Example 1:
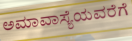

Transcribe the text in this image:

ಅಮಾವಾಸ್ಯೆಯವರೆಗೆ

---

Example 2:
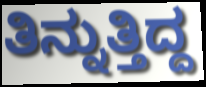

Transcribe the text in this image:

ತಿನ್ನುತ್ತಿದ್ದ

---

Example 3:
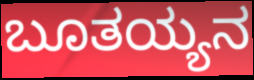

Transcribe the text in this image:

ಬೂತಯ್ಯನ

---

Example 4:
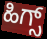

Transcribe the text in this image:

ಹಿಗ್ಸ್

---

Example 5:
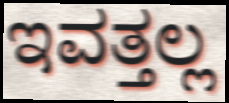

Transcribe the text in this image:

ಇವತ್ತಲ್ಲ